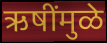
ऋषींमुळे